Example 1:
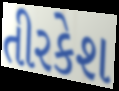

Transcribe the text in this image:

તીરકેશ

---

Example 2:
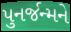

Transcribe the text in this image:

પુનર્જન્મને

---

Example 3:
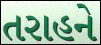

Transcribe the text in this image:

તરાહને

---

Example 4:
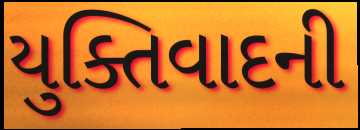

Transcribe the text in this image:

યુક્તિવાદની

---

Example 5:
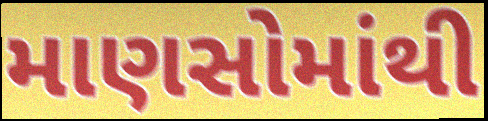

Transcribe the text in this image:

માણસોમાંથી